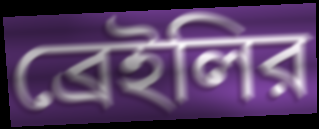
ব্রেইলির